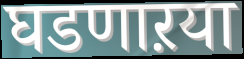
घडणाऱया